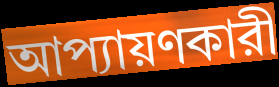
আপ্যায়ণকারী